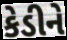
કેડીને